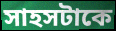
সাহসটাকে